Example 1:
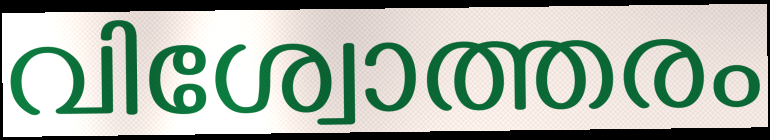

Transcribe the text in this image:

വിശ്വോത്തരം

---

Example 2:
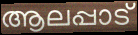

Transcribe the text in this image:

ആലപ്പാട്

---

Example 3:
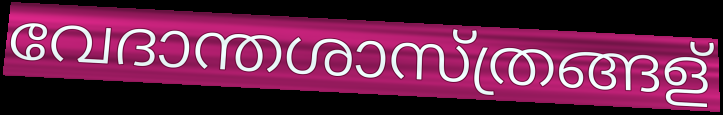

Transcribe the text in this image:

വേദാന്തശാസ്ത്രങ്ങള്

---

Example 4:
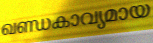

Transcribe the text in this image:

ഖണ്ഡകാവ്യമായ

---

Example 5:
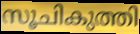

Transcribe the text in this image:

സൂചികുത്തി